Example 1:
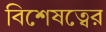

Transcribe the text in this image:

বিশেষত্বের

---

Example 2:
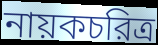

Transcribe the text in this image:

নায়কচরিত্র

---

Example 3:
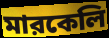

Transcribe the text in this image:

মারকেলি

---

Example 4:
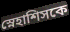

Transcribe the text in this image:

স্নেহাশিসকে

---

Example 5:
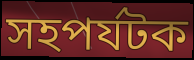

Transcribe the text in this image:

সহপর্যটক